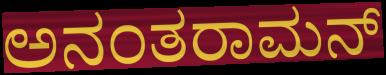
ಅನಂತರಾಮನ್